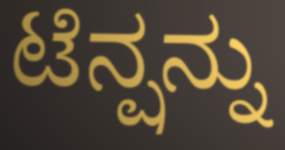
ಟೆನ್ಷನ್ನು